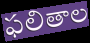
ఫలితాల